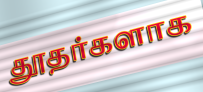
தூதர்களாக